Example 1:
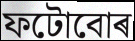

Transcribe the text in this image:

ফটোবোৰ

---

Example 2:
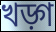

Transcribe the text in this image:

খড়্গ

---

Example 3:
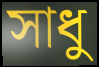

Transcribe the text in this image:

সাধু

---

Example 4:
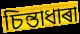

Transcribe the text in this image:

চিন্তাধাৰা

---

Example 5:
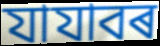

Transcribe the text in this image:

যাযাবৰ